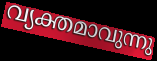
വ്യക്തമാവുന്നു